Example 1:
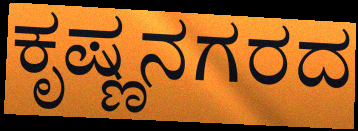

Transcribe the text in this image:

ಕೃಷ್ಣನಗರದ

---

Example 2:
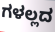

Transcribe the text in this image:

ಗಳಲ್ಲದ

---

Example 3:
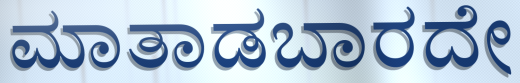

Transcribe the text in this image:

ಮಾತಾಡಬಾರದೇ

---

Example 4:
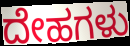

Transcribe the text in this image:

ದೇಹಗಳು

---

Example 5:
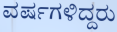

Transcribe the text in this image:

ವರ್ಷಗಳಿದ್ದರು